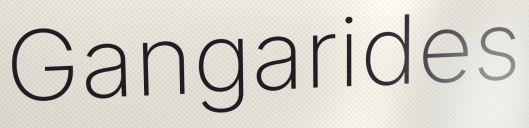
Gangarides